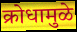
क्रोधामुळे